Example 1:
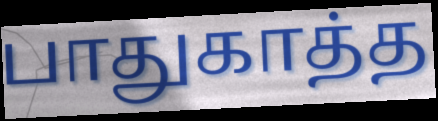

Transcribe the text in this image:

பாதுகாத்த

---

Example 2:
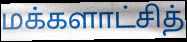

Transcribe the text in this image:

மக்களாட்சித்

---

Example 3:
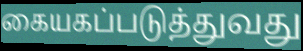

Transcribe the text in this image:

கையகப்படுத்துவது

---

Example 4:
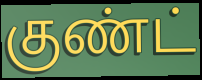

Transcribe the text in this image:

குண்ட்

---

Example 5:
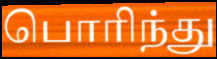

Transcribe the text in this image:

பொரிந்து